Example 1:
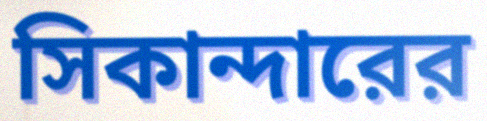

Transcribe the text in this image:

সিকান্দারের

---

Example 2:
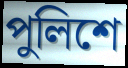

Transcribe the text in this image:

পুলিশে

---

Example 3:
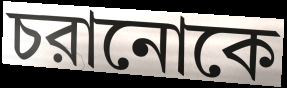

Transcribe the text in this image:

চরানোকে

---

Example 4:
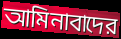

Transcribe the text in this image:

আমিনাবাদের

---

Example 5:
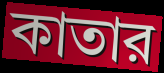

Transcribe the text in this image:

কাতার